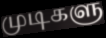
முடிகளு